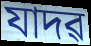
যাদৱ